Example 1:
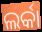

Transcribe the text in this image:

ଲର୍କା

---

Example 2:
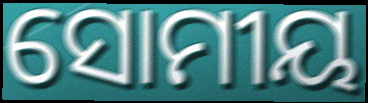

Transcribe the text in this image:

ସୋମୀୟ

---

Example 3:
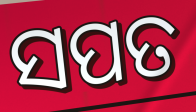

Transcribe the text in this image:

ସପତ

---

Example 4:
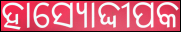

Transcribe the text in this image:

ହାସ୍ୟୋଦ୍ଦୀପକ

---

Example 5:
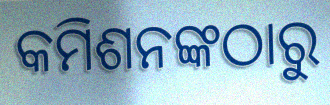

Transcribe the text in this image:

କମିଶନଙ୍କଠାରୁ